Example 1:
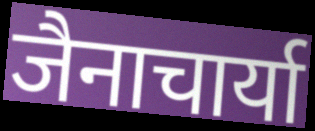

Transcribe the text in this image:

जैनाचार्या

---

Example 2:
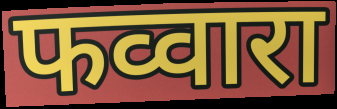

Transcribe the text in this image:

फव्वारा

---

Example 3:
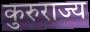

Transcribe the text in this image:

कुरुराज्य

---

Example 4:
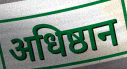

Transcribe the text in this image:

अधिष्ठान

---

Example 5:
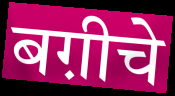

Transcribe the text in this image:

बग़ीचे